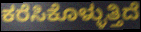
ಕರೆಸಿಕೊಳ್ಳುತ್ತಿದೆ